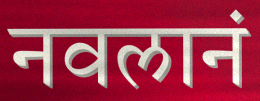
नवलानं